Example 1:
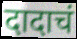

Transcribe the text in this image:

दादाचं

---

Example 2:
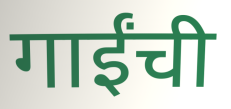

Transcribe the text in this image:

गाईंची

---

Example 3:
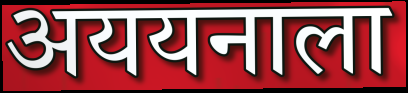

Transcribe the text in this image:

अययनाला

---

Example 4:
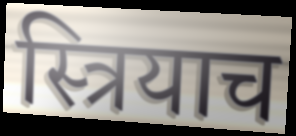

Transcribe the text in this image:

स्त्रियाच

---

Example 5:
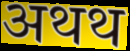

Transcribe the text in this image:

अथथ